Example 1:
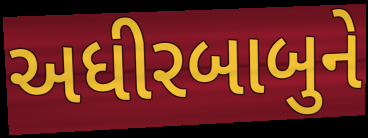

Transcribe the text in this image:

અધીરબાબુને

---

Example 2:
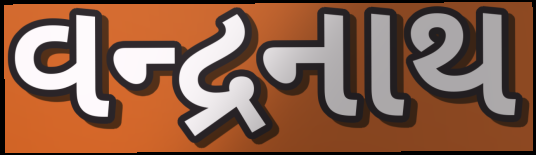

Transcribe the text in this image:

વન્દ્રનાથ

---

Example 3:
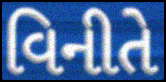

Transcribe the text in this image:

વિનીતે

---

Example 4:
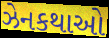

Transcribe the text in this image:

ઝેનકથાઓ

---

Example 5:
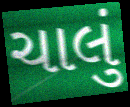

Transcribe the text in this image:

ચાલું